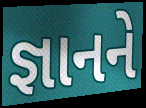
જ્ઞાનને